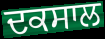
ਦਕਸਾਲ